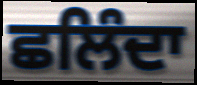
ਛਲਿੰਦਾ